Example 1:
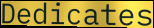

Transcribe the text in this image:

Dedicates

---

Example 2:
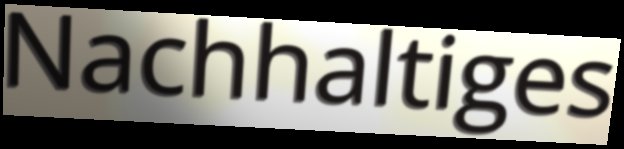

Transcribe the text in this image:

Nachhaltiges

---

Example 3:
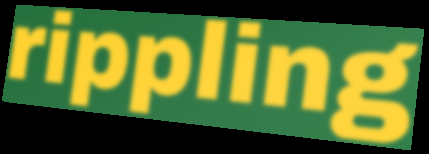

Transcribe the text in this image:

rippling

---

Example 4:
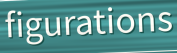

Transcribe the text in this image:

figurations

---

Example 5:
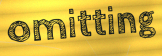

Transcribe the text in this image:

omitting